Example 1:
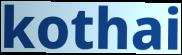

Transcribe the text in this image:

kothai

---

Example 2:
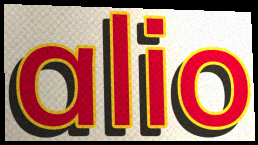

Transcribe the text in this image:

alio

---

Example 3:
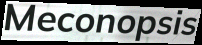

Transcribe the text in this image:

Meconopsis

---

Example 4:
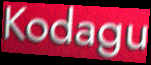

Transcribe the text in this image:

Kodagu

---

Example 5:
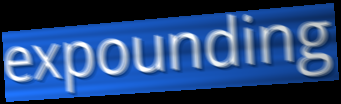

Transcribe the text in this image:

expounding